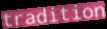
tradition